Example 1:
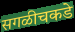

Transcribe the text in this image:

सगळीचकडे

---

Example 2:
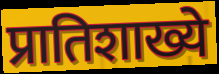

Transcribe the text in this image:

प्रातिशाख्ये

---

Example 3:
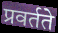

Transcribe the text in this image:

प्रवर्तते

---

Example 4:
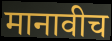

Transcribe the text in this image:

मानावीच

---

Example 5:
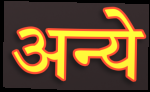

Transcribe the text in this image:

अन्ये